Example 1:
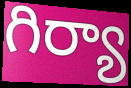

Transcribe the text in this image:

గిర్యా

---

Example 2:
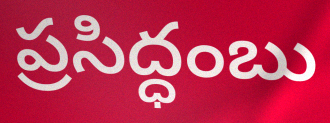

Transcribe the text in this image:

ప్రసిద్ధంబు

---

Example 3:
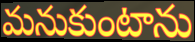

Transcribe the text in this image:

మనుకుంటాను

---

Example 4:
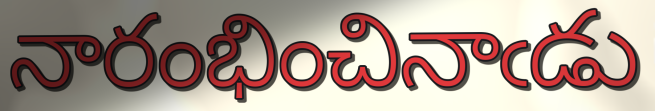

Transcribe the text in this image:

నారంభించినాఁడు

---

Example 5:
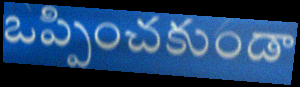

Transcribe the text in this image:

ఒప్పించకుండా